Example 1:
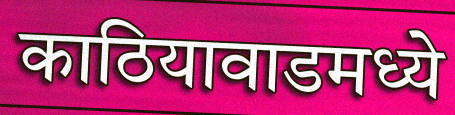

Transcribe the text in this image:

काठियावाडमध्ये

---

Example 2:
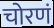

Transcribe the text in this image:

चोरणं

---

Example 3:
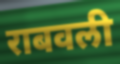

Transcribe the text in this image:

राबवली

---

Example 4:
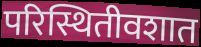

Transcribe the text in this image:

परिस्थितीवशात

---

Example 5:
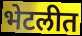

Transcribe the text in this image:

भेटलीत